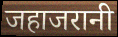
जहाजरानी